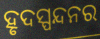
ହୃଦସ୍ପନ୍ଦନର